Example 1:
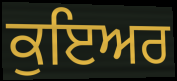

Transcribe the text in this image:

ਕੁਇਅਰ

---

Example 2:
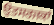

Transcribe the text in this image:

ਉਤਸਰਜਕਾਂ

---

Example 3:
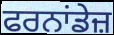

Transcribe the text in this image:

ਫਰਨਾਂਡੇਜ਼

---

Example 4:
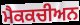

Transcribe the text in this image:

ਮੈਕਕਚੀਅਨ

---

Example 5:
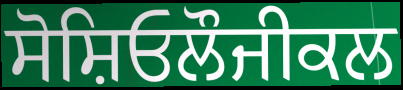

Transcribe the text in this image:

ਸੋਸ਼ਿਓਲੌਜੀਕਲ